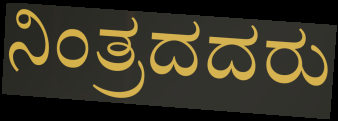
ನಿಂತ್ರದದರು